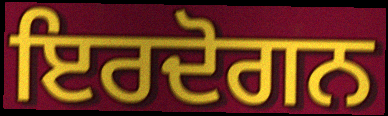
ਇਰਦੋਗਨ